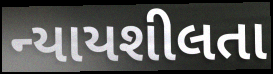
ન્યાયશીલતા